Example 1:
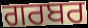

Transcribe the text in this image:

ਗਰਬਰ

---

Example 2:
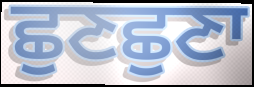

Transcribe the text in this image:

ਛੁਣਛੁਣਾ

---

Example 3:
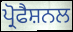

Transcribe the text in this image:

ਪ੍ਰੋਫੈਸ਼ਨਲ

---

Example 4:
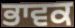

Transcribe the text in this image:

ਭਾਵਕ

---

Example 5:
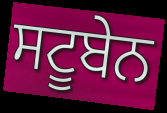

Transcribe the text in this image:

ਸਟੂਬੇਨ